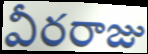
వీరరాజు